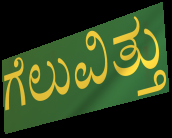
ಗೆಲುವಿತ್ತು